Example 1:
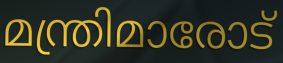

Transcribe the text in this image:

മന്ത്രിമാരോട്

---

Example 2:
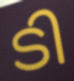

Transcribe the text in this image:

ടി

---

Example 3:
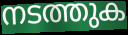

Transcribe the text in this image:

നടത്തുക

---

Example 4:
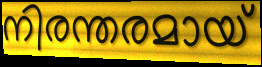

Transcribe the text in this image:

നിരന്തരമായ്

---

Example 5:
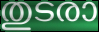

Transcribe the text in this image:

തുടരാ